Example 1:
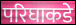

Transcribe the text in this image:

परिघाकडे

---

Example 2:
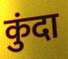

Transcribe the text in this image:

कुंदा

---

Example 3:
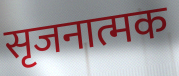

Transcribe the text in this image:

सृजनात्मक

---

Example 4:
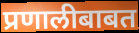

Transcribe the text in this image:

प्रणालीबाबत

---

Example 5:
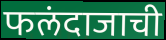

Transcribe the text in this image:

फलंदाजाची